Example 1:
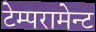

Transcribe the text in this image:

टेम्परामेन्ट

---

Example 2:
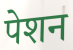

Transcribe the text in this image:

पेशन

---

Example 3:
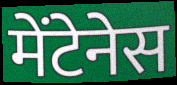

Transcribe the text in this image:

मेंटेनेस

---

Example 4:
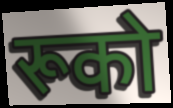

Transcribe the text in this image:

रूको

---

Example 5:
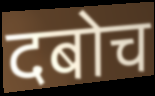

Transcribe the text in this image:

दबोच